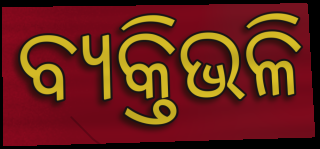
ବ୍ୟକ୍ତିଭଳି